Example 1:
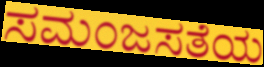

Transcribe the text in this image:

ಸಮಂಜಸತೆಯ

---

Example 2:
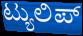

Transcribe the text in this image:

ಟ್ಯುಲಿಪ್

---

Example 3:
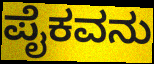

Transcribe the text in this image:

ಪೈಕವನು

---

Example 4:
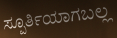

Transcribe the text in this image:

ಸ್ಪೂರ್ತಿಯಾಗಬಲ್ಲ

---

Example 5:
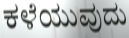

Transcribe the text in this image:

ಕಳೆಯುವುದು